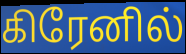
கிரேனில்